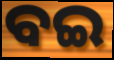
ବଇ